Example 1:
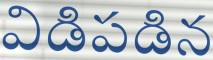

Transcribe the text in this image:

విడిపడిన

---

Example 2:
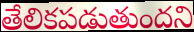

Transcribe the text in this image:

తేలికపడుతుందని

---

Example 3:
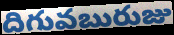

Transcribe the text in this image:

దిగువబురుజు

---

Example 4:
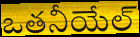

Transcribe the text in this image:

ఒతనీయేల్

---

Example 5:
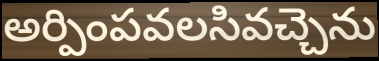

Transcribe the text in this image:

అర్పింపవలసివచ్చెను